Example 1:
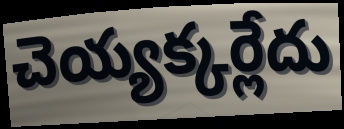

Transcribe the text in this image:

చెయ్యక్కర్లేదు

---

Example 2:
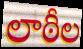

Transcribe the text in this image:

లాఠీల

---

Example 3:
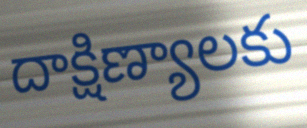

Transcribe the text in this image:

దాక్షిణ్యాలకు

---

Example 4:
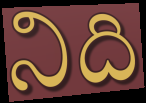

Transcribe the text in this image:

నిది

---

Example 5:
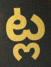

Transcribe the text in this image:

ట్ల